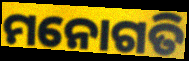
ମନୋଗତି